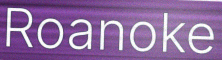
Roanoke